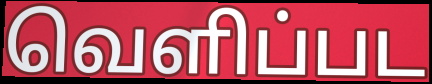
வெளிப்பட